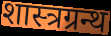
शास्त्रग्रन्थ